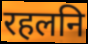
रहलनि